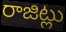
రాజిట్లు